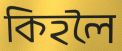
কিহলৈ